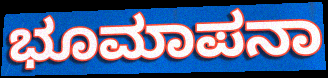
ಭೂಮಾಪನಾ